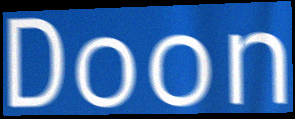
Doon